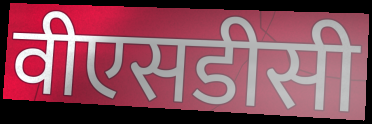
वीएसडीसी